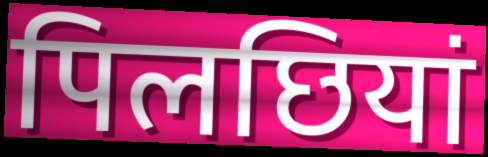
पिलछियां